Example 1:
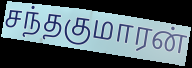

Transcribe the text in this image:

சந்தகுமாரன்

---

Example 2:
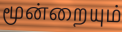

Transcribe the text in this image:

மூன்றையும்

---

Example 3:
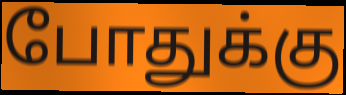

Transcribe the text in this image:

போதுக்கு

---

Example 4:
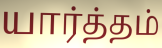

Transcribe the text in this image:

யார்த்தம்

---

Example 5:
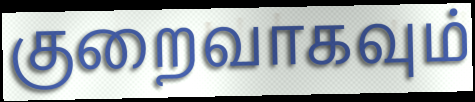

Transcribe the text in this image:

குறைவாகவும்